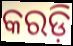
କରଡ଼ି